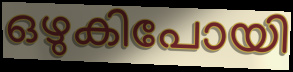
ഒഴുകിപോയി